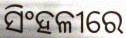
ସିଂହଳୀରେ